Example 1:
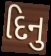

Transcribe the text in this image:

દિનુ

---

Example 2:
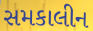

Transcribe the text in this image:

સમકાલીન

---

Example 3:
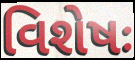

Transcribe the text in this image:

વિશેષઃ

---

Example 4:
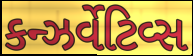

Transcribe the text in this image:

કન્ઝર્વેટિવ્સ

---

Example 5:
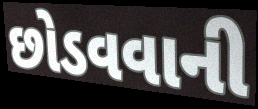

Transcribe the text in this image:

છોડવવાની